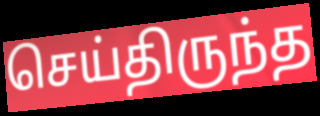
செய்திருந்த